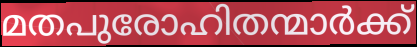
മതപുരോഹിതന്മാർക്ക്